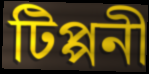
টিপ্পনী